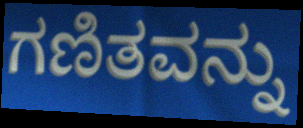
ಗಣಿತವನ್ನು